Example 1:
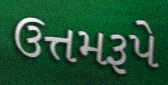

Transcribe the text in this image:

ઉત્તમરૂપે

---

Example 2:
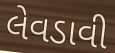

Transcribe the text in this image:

લેવડાવી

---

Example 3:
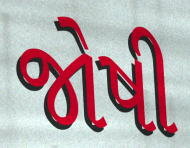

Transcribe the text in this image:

જોષી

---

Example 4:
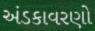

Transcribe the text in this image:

અંડકાવરણો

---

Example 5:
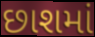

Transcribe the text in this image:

છાશમાં